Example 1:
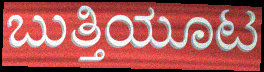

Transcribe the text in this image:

ಬುತ್ತಿಯೂಟ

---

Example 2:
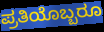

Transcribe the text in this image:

ಪ್ರತಿಯೊಬ್ಬರೂ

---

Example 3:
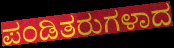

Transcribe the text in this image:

ಪಂಡಿತರುಗಳಾದ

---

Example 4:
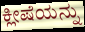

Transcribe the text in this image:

ಕ್ಲೀಷೆಯನ್ನು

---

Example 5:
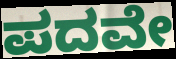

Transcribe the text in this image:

ಪದವೇ